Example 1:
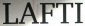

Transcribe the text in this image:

LAFTI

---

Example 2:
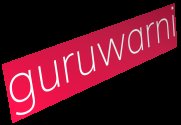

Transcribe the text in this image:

guruwarni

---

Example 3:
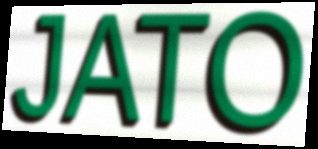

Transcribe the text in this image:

JATO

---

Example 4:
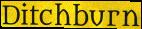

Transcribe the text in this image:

Ditchburn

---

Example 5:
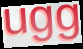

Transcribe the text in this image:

ugg